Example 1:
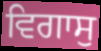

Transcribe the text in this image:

ਵਿਗਾਸੁ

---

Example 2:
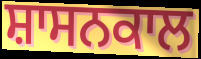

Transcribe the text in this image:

ਸ਼ਾਸਨਕਾਲ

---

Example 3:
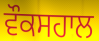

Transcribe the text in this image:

ਵੌਕਸਹਾਲ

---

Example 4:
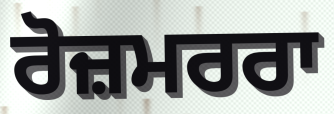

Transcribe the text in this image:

ਰੋਜ਼ਮਰਰਾ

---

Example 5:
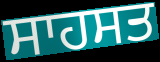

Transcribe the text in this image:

ਸਾਹਸਤ